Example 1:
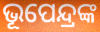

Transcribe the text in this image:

ଭୂପେନ୍ଦ୍ରଙ୍କ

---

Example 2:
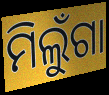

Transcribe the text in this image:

ମିଲୁଁଗା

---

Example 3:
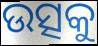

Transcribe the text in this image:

ଉତ୍ସକୁ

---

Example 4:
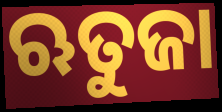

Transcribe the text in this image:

ଋତୁଜା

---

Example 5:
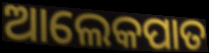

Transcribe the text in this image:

ଆଲେକପାତ